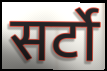
सर्टो